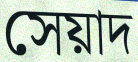
সেয়াদ